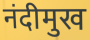
नंदीमुख